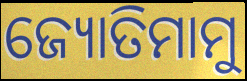
ଜ୍ୟୋତିମାମୁ